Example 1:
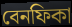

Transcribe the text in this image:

বেনফিকা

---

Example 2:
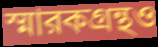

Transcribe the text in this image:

স্মারকগ্রন্থও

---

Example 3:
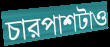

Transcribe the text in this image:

চারপাশটাও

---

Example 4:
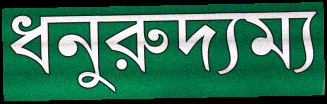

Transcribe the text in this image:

ধনুরুদ্যম্য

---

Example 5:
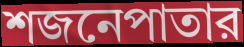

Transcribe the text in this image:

শজনেপাতার